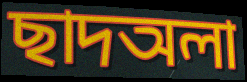
ছাদঅলা